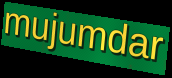
mujumdar